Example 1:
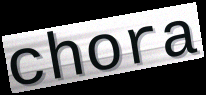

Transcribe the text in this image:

chora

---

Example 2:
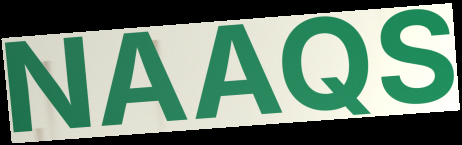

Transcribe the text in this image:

NAAQS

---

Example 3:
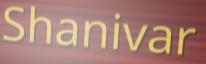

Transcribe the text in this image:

Shanivar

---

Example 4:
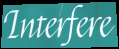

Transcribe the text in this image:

Interfere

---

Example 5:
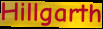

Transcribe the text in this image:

Hillgarth